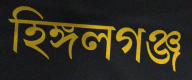
হিঙ্গলগঞ্জ